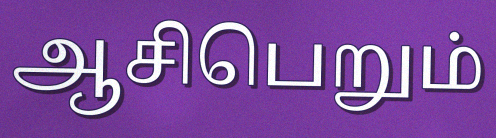
ஆசிபெறும்